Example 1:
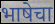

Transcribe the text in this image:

भाषेचा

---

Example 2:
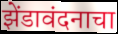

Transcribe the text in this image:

झेंडावंदनाचा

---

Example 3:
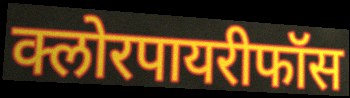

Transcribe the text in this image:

क्लोरपायरीफॉस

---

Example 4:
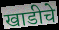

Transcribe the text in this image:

खाडीचे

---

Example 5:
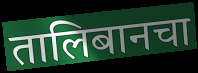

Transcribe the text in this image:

तालिबानचा